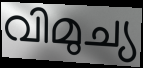
വിമുച്യ